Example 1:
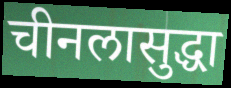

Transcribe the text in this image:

चीनलासुद्धा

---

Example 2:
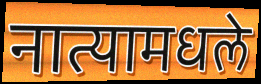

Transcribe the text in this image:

नात्यामधले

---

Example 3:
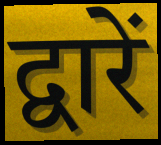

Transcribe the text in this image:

द्वारें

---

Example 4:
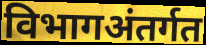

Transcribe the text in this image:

विभागअंतर्गत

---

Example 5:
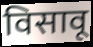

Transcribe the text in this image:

विसावू